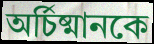
অর্চিষ্মানকে